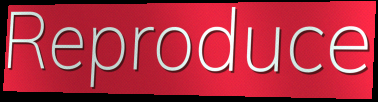
Reproduce